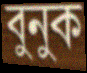
বুনুক